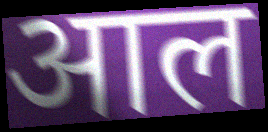
आल